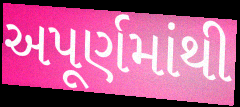
અપૂર્ણમાંથી